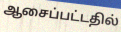
ஆசைப்பட்டதில்